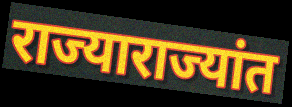
राज्याराज्यांत